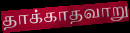
தாக்காதவாறு